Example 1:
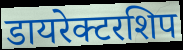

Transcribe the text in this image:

डायरेक्टरशिप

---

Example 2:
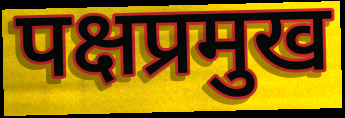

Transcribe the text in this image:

पक्षप्रमुख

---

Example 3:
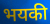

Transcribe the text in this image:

भयकी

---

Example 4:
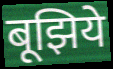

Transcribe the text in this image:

बूझिये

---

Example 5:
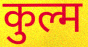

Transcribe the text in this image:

कुल्म